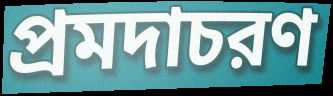
প্রমদাচরণ